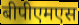
बीपीएमएस